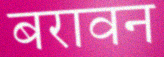
बरावन